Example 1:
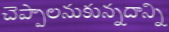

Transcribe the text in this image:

చెప్పాలనుకున్నదాన్ని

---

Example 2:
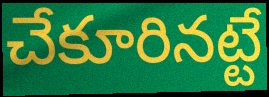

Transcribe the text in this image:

చేకూరినట్టే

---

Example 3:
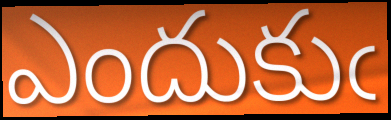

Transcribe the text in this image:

ఎందుకుఁ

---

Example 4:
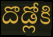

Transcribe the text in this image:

దొడ్లోకి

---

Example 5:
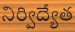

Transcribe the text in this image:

నిర్విద్యేత